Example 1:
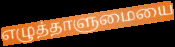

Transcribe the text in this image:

எழுத்தாளுமையை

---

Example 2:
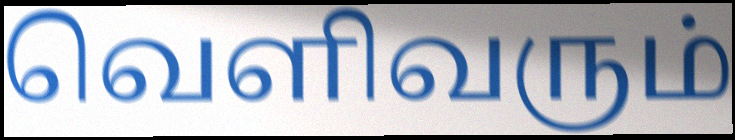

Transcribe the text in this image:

வெளிவரும்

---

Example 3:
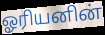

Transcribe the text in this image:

ஓரியனின்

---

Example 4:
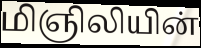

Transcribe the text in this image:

மிஞிலியின்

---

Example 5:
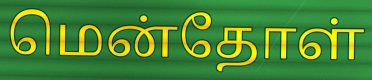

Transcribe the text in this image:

மென்தோள்